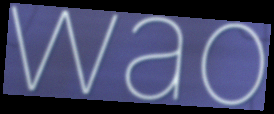
wao